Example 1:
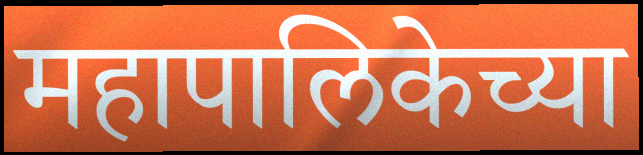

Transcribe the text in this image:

महापालिकेच्या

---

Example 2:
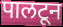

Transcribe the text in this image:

पालटून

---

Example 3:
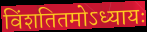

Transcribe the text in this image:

विंशतितमोऽध्यायः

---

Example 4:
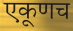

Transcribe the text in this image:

एकूणच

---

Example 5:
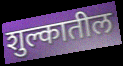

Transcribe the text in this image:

शुल्कातील